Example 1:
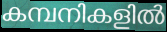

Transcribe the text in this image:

കമ്പനികളിൽ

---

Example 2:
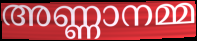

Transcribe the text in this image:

അണ്ണാനമ്മ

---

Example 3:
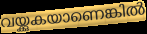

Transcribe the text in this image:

വയ്ക്കുകയാണെങ്കിൽ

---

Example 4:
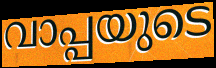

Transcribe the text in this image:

വാപ്പയുടെ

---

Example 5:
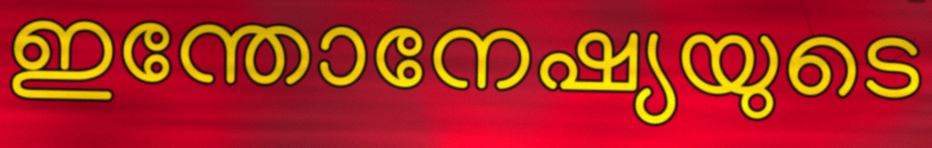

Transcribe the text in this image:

ഇന്തോനേഷ്യയുടെ